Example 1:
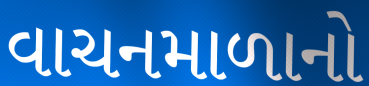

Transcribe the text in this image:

વાચનમાળાનો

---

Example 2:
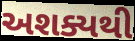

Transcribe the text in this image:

અશક્યથી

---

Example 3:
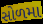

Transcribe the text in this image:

સોળમા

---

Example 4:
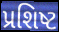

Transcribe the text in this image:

પ્રશિષ્ટ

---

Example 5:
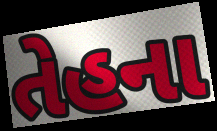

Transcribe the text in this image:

તેહના